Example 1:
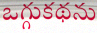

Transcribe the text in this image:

ఒగ్గుకథను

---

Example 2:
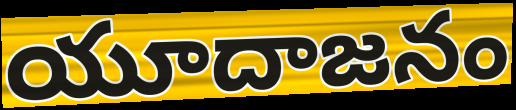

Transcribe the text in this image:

యూదాజనం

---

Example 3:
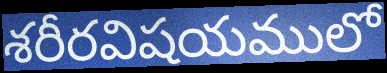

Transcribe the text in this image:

శరీరవిషయములో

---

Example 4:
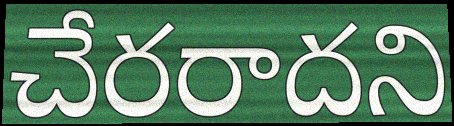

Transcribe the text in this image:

చేరరాదని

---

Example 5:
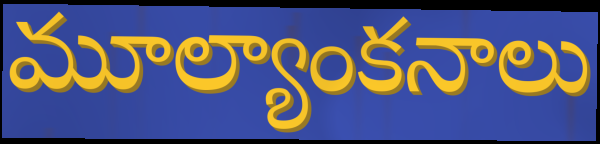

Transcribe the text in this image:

మూల్యాంకనాలు